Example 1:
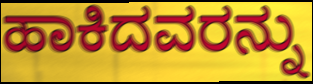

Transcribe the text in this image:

ಹಾಕಿದವರನ್ನು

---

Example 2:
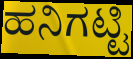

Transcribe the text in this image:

ಹನಿಗಟ್ಟಿ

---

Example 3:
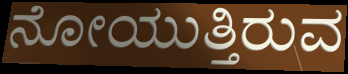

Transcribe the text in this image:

ನೋಯುತ್ತಿರುವ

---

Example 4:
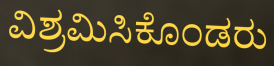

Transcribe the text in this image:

ವಿಶ್ರಮಿಸಿಕೊಂಡರು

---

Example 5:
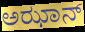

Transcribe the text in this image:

ಅಝಾನ್